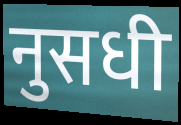
नुसधी